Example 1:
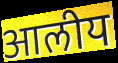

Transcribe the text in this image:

आलीय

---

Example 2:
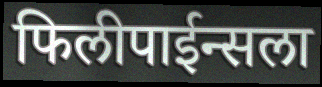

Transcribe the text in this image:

फिलीपाईन्सला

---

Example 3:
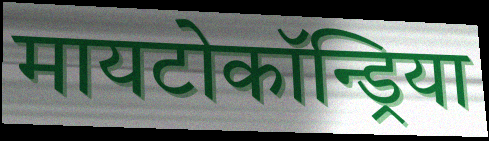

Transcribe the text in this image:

मायटोकॉन्ड्रिया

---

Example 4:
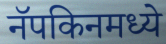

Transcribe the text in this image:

नॅपकिनमध्ये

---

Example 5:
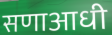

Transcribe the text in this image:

सणाआधी